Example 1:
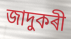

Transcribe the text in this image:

জাদুকৰী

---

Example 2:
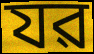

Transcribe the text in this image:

যৱ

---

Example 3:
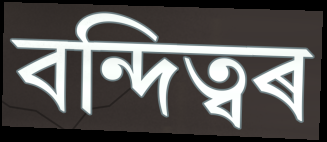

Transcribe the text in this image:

বন্দিত্বৰ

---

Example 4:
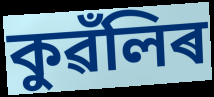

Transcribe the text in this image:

কুৱঁলিৰ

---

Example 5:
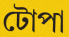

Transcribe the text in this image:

টোপা